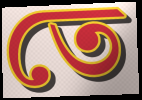
তে